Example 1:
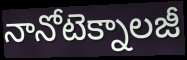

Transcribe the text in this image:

నానోటెక్నాలజీ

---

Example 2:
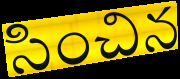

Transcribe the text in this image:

సించిన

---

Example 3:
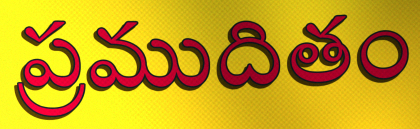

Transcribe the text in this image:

ప్రముదితం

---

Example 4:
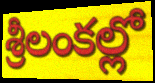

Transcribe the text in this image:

శ్రీలంకల్లో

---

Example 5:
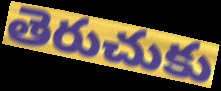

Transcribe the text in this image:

తెరుచుకు